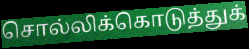
சொல்லிக்கொடுத்துக்